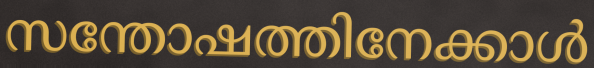
സന്തോഷത്തിനേക്കാൾ